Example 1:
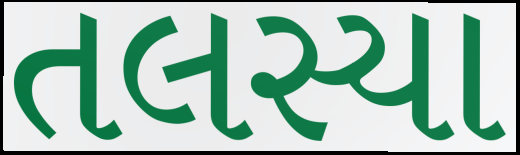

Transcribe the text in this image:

તલસ્યા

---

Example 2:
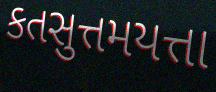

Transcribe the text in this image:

કતસુત્તમયત્તા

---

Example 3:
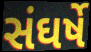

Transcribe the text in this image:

સંઘર્ષે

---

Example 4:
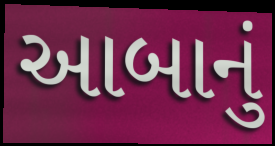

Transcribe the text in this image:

આબાનું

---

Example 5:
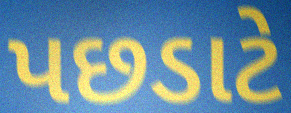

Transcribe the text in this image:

પછડાટે